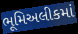
ભૂમિઅલીકમાં